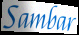
Sambar